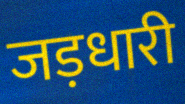
जड़धारी